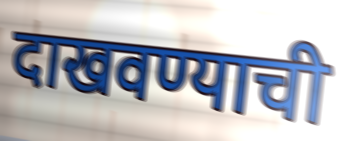
दाखवण्याची